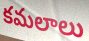
కమలాలు